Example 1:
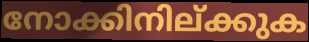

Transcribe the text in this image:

നോക്കിനില്ക്കുക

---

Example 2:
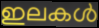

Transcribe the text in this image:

ഇലകൾ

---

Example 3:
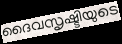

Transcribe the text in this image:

ദൈവസൃഷ്ടിയുടെ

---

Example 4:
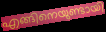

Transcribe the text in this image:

എങ്ങിനെയുണ്ടായി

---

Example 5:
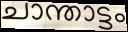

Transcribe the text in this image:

ചാന്താട്ടം